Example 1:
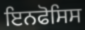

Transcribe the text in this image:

ਇਨਫੋਸਿਸ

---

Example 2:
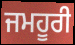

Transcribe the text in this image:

ਜਮਹੂਰੀ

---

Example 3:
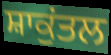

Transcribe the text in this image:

ਸ਼ਾਕੁਂਤਲ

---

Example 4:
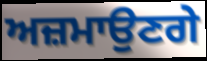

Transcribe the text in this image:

ਅਜ਼ਮਾਉਣਗੇ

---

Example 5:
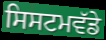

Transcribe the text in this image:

ਸਿਸਟਮਵੱਡੇ